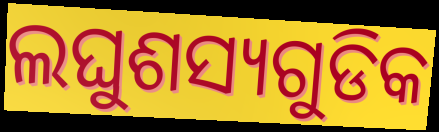
ଲଘୁଶସ୍ୟଗୁଡିକ